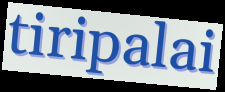
tiripalai